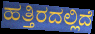
ಹತ್ತಿರದಲ್ಲಿದೆ